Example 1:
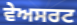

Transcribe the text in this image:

ਵੇਅਸਰਟ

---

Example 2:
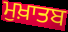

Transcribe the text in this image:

ਮੁਖ਼ਾਤਬ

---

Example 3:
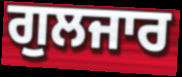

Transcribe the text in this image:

ਗੁਲਜਾਰ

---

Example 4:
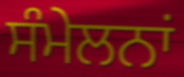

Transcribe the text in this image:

ਸੰਮੇਲਨਾਂ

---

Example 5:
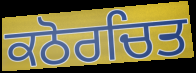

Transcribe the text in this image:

ਕਠੋਰਚਿਤ